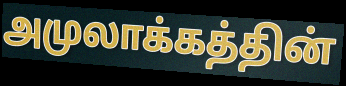
அமுலாக்கத்தின்